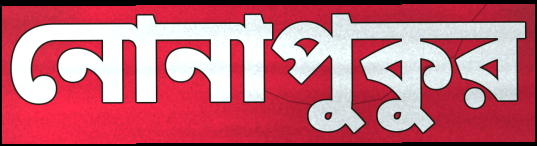
নোনাপুকুর